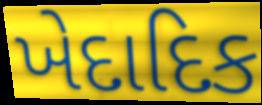
ખેદાદિક